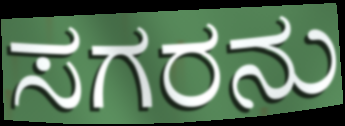
ಸಗರನು